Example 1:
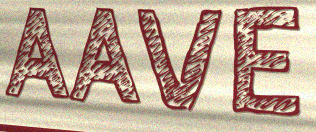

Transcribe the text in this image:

AAVE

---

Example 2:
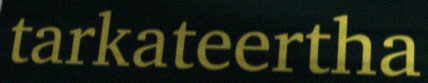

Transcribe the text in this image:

tarkateertha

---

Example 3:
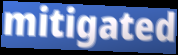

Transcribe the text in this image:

mitigated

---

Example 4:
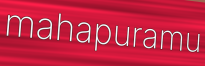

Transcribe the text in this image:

mahapuramu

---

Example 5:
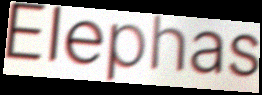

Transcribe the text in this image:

Elephas